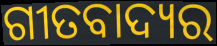
ଗୀତବାଦ୍ୟର